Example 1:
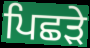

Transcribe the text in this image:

ਪਿਛੜੇ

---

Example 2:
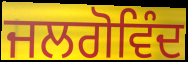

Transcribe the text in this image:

ਜਲਗੋਵਿੰਦ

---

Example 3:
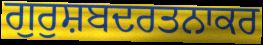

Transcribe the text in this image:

ਗੁਰੁਸ਼ਬਦਰਤਨਾਕਰ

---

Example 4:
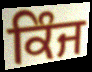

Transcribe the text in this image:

ਕਿੰਜ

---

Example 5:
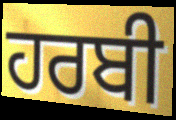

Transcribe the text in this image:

ਹਰਬੀ